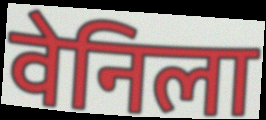
वेनिला